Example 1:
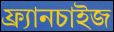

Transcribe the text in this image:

ফ্র্যানচাইজ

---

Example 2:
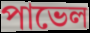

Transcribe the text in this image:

পাভেল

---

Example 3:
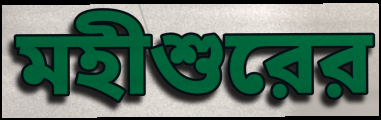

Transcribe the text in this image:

মহীশুরের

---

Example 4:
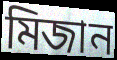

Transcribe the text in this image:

মিজান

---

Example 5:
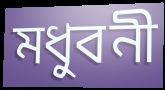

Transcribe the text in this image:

মধুবনী